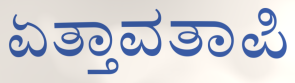
ಏತ್ತಾವತಾಪಿ